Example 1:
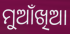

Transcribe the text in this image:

ମୁଆଁଖିଆ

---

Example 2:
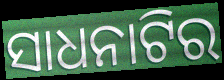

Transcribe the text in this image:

ସାଧନାଟିର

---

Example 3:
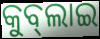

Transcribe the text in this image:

କୁବ୍‌ଲାଇ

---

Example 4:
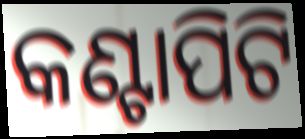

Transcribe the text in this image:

କଣ୍ଟାପିଟି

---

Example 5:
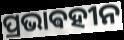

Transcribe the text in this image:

ପ୍ରଭାଵହୀନ